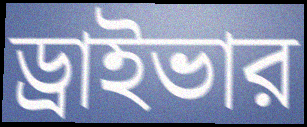
ড্রাইভার